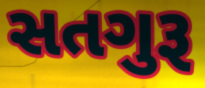
સતગુરૂ